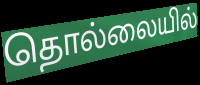
தொல்லையில்